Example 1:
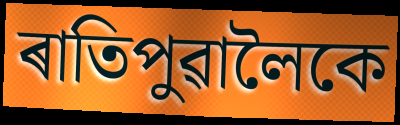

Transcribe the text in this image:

ৰাতিপুৱালৈকে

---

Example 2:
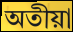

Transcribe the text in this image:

অতীয়া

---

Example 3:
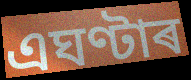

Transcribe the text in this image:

এঘণ্টাৰ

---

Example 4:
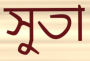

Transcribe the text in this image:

সুতা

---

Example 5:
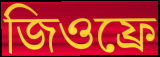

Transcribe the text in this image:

জিওফ্ৰে